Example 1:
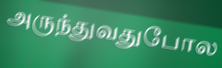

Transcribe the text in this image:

அருந்துவதுபோல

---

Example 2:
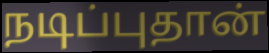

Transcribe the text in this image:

நடிப்புதான்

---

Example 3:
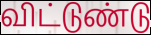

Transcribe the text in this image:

விட்டுண்டு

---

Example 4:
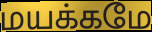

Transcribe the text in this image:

மயக்கமே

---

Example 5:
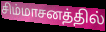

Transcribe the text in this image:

சிம்மாசனத்தில்